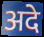
अदे